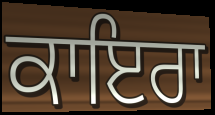
ਕਾਇਰਾ